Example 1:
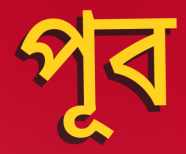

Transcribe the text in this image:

পূব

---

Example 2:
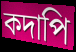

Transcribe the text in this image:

কদাপি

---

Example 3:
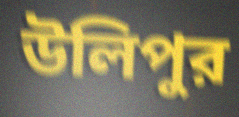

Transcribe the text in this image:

উলিপুর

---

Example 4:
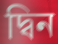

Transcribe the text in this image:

দ্বিন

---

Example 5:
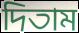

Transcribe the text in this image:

দিতাম